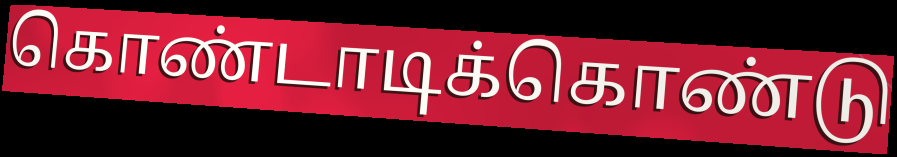
கொண்டாடிக்கொண்டு